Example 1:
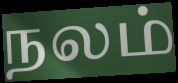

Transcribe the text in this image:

நலம்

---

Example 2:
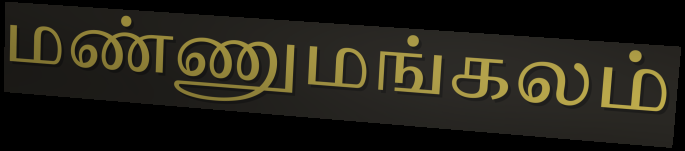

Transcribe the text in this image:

மண்ணுமங்கலம்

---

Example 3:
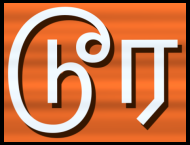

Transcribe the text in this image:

டூர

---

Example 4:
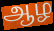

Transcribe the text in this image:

ஆழ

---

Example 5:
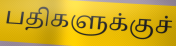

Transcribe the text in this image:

பதிகளுக்குச்